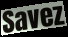
Savez